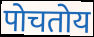
पोचतोय